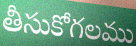
తీసుకోగలము